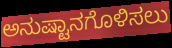
ಅನುಷ್ಟಾನಗೊಳಿಸಲು